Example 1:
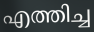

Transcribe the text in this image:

എത്തിച്ച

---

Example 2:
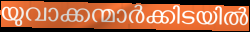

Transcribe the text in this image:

യുവാക്കന്മാർക്കിടയിൽ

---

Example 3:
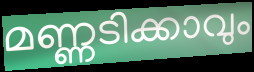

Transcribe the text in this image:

മണ്ണടിക്കാവും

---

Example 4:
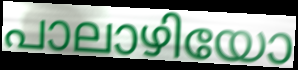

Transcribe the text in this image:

പാലാഴിയോ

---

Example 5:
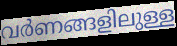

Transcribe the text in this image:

വർണങ്ങളിലുള്ള